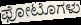
ಫೋಟೊಗಳು